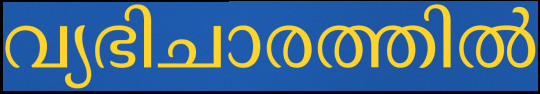
വ്യഭിചാരത്തിൽ